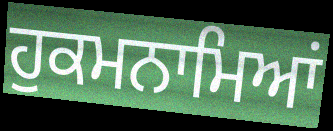
ਹੁਕਮਨਾਮਿਆਂ